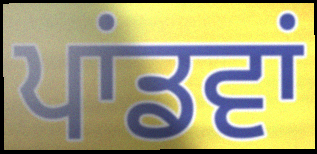
ਪਾਂਡਵਾਂ